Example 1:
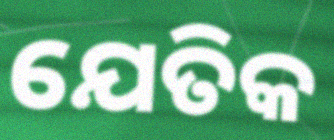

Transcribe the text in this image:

ଯେତିକ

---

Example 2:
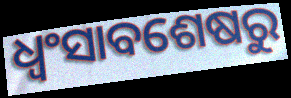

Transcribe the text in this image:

ଧ୍ୱଂସାବଶେଷରୁ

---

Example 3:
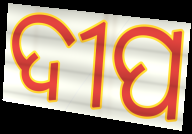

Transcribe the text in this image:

ଦୀପ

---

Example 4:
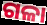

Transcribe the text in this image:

ଗଳା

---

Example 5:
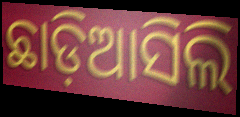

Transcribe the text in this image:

ଛାଡ଼ିଆସିଲି